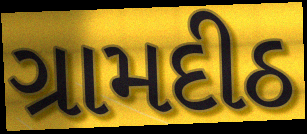
ગ્રામદીઠ